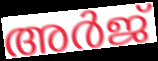
അർജ്